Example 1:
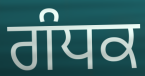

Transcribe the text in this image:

ਗੰਧਕ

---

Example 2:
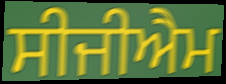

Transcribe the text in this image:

ਸੀਜੀਐਮ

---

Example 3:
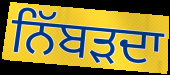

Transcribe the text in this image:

ਨਿੱਬੜਦਾ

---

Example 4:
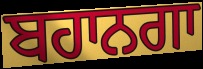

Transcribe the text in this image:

ਬਹਾਨਗਾ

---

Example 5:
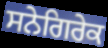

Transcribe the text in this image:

ਸਨੇਗਿਰੇਕ